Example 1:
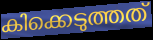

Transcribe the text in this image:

കിക്കെടുത്തത്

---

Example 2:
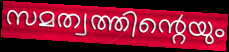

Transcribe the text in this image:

സമത്വത്തിന്റെയും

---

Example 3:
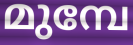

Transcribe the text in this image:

മുമ്പേ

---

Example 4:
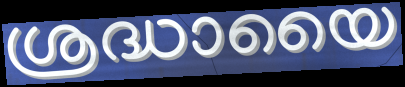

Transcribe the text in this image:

ശ്രദ്ധായൈ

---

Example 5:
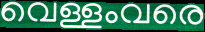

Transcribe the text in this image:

വെള്ളംവരെ